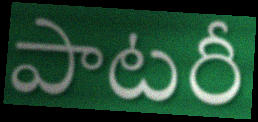
పాటరీ